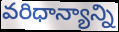
వరిధాన్యాన్ని